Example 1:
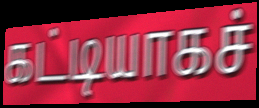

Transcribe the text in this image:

கட்டியாகச்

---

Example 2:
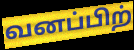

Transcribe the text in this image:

வனப்பிற்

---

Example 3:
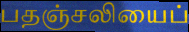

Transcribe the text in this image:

பதஞ்சலியைப்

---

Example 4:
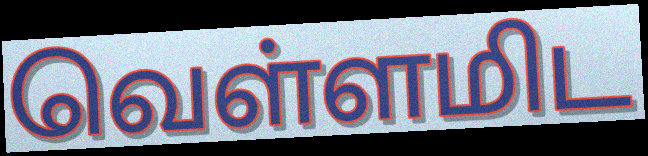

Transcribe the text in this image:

வெள்ளமிட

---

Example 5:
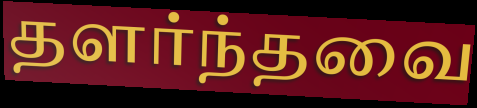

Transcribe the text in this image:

தளர்ந்தவை